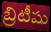
బ్రిటీషు